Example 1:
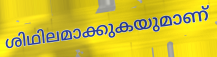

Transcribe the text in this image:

ശിഥിലമാക്കുകയുമാണ്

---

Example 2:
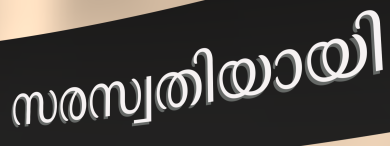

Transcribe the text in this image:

സരസ്വതിയായി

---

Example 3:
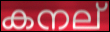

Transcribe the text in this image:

കനല്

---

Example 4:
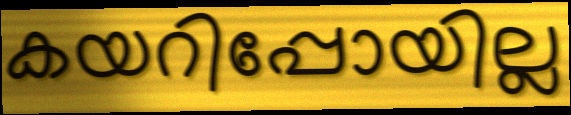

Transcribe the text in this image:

കയറിപ്പോയില്ല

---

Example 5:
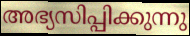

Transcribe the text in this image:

അഭ്യസിപ്പിക്കുന്നു